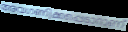
അവഗണിക്കപ്പെടാറാണ്